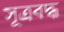
সূত্রবদ্ধ